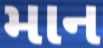
માન